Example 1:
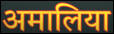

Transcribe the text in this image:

अमालिया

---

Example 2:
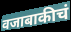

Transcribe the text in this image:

वजाबाकीचं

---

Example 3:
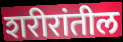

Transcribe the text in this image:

शरीरांतील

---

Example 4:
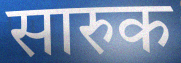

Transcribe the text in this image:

सारुक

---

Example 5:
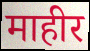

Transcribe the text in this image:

माहीर